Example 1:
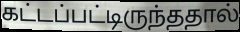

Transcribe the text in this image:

கட்டப்பட்டிருந்ததால்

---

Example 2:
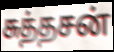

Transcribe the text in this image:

சுத்தசன்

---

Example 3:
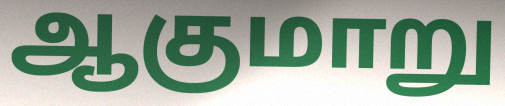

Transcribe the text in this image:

ஆகுமாறு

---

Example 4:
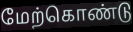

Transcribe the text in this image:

மேற்கொண்டு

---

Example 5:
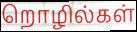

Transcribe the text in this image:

றொழில்கள்